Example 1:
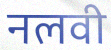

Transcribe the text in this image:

नलवी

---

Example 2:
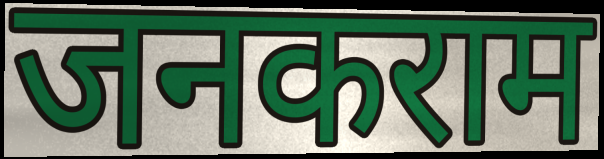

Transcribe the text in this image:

जनकराम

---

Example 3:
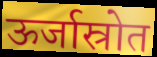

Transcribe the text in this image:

ऊर्जास्रोत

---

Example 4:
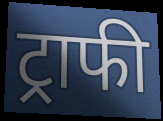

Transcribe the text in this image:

ट्राफी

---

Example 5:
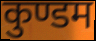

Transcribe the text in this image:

कुण्डम